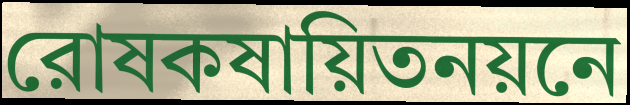
রোষকষায়িতনয়নে